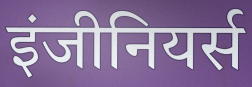
इंजीनियर्स